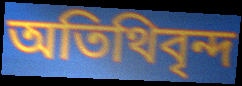
অতিথিবৃন্দ